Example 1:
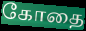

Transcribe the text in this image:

கோதை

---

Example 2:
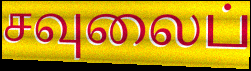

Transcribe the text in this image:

சவுலைப்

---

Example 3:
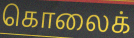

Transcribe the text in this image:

கொலைக்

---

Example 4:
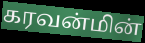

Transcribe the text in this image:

கரவன்மின்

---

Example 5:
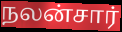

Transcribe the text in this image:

நலன்சார்